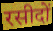
रसीदों